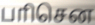
பரிசென